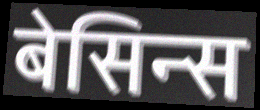
बेसिन्स